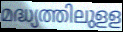
മദ്ധ്യത്തിലുളള